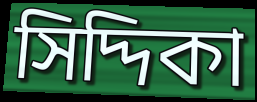
সিদ্দিকা